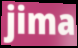
jima